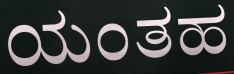
ಯಂತಹ